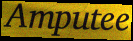
Amputee